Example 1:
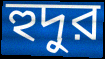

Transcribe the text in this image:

হুদুর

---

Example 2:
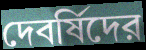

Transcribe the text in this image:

দেবর্ষিদের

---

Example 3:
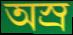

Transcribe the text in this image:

অস্র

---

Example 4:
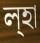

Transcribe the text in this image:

ল্হা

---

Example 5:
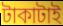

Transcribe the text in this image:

টাকাটাই